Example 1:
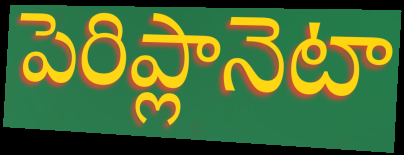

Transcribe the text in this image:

పెరిప్లానెటా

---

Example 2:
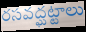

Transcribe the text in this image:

రసవద్ఘట్టాలు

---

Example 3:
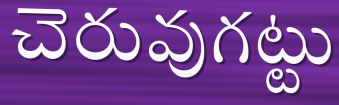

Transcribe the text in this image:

చెరువుగట్టు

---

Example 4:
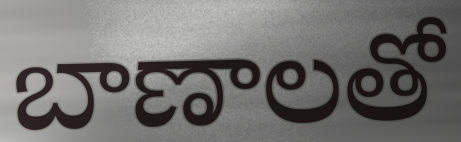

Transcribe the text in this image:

బాణాలతో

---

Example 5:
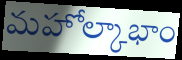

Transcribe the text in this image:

మహోల్కాభాం